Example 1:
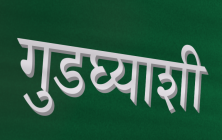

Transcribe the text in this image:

गुडघ्याशी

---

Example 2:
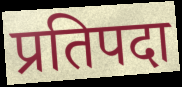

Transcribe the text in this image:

प्रतिपदा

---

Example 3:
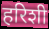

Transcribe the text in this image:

हरिशी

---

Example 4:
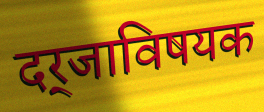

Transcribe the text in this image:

दर्जाविषयक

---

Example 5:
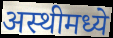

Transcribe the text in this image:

अस्थीमध्ये